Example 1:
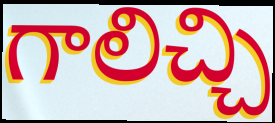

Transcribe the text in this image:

గాలిచ్చి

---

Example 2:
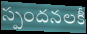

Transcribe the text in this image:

స్పందనలకీ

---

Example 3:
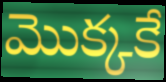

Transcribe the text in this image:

మొక్కకే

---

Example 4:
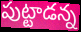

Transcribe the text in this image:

పుట్టాడన్న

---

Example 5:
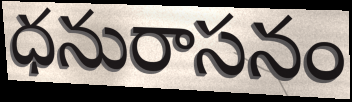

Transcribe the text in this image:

ధనురాసనం